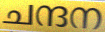
ചന്ദന